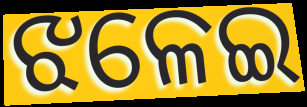
ଝଳେଇ